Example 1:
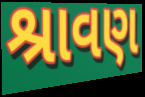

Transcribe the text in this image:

શ્રાવણ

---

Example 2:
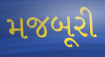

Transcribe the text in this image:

મજબૂરી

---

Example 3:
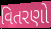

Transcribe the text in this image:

વિતરણો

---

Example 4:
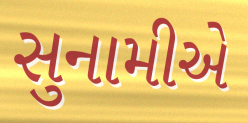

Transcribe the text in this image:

સુનામીએ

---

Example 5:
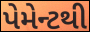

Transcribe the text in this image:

પેમેન્ટથી